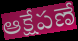
ఆక్షేపణే